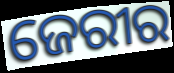
ଜେରୀର